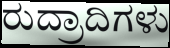
ರುದ್ರಾದಿಗಳು